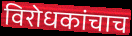
विरोधकांचाच